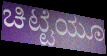
ಚಿಟ್ಟೆಯೂ